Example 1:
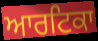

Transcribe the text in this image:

ਆਰਟਿਕਾ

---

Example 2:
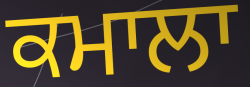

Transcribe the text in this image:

ਕਮਾਲਾ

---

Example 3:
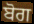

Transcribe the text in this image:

ਬੋਗ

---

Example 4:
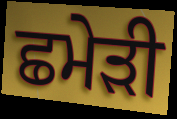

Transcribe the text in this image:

ਛਮੇੜੀ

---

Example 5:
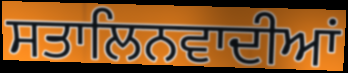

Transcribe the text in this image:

ਸਤਾਲਿਨਵਾਦੀਆਂ